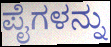
ಪೈಗಳನ್ನು